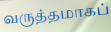
வருத்தமாகப்